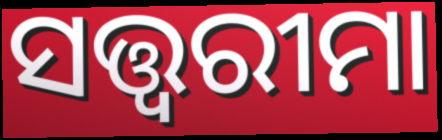
ସତ୍ତ୍ୱରୀମା